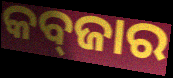
କବ୍‍ଜାର